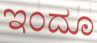
ಇಂದೂ